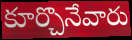
కూర్చొనేవారు